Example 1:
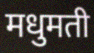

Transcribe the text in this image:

मधुमती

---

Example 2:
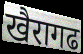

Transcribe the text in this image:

खैरागढ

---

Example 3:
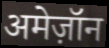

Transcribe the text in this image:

अमेज़ॉन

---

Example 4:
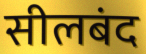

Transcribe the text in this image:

सीलबंद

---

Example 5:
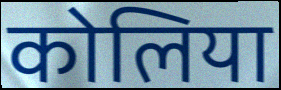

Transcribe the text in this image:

कोलिया